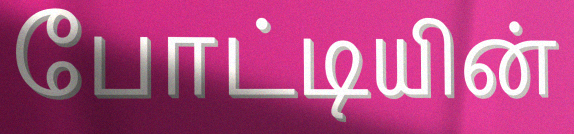
போட்டியின்